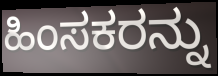
ಹಿಂಸಕರನ್ನು